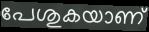
പേശുകയാണ്